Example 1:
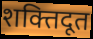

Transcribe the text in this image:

शक्तिदूत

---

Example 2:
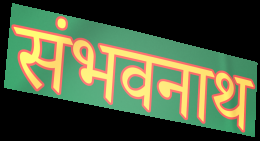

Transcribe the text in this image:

संभवनाथ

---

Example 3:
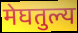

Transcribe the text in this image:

मेघतुल्य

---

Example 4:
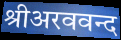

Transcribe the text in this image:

श्रीअरववन्द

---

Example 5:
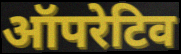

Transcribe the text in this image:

ऑपरेटिव